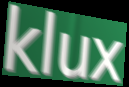
klux